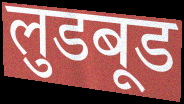
लुडबूड